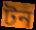
টন